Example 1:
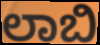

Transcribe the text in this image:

ಲಾಬಿ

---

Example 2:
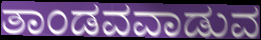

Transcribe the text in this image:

ತಾಂಡವವಾಡುವ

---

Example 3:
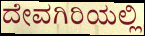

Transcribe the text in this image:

ದೇವಗಿರಿಯಲ್ಲಿ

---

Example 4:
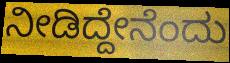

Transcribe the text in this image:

ನೀಡಿದ್ದೇನೆಂದು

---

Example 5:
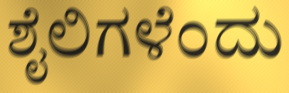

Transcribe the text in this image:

ಶೈಲಿಗಳೆಂದು